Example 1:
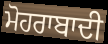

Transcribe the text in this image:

ਮੋਹਰਾਬਾਦੀ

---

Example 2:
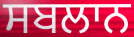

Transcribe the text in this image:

ਸਬਲਾਨ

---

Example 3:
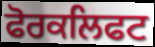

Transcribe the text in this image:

ਫੋਰਕਲਿਫਟ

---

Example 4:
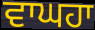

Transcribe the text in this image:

ਵਾਘਹਾ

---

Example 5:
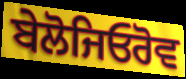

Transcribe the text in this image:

ਬੇਲੋਜਿਓਰੋਵ